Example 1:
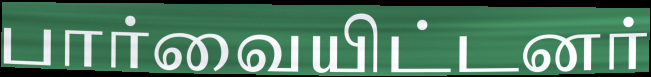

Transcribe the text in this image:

பார்வையிட்டனர்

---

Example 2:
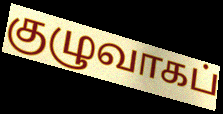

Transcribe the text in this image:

குழுவாகப்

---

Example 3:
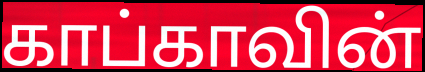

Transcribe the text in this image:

காப்காவின்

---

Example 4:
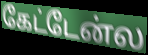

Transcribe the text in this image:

கேட்டேன்ல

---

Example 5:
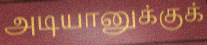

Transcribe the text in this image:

அடியானுக்குக்